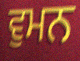
ਵੁਮਨ